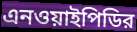
এনওয়াইপিডির